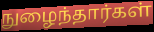
நுழைந்தார்கள்